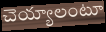
చెయ్యాలంటూ